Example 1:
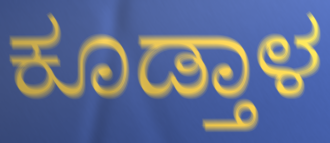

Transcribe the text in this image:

ಕೂಡ್ತಾಳ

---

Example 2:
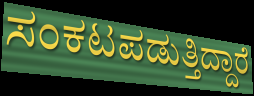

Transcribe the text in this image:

ಸಂಕಟಪಡುತ್ತಿದ್ದಾರೆ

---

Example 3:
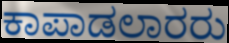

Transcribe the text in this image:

ಕಾಪಾಡಲಾರರು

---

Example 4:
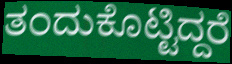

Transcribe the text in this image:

ತಂದುಕೊಟ್ಟಿದ್ದರೆ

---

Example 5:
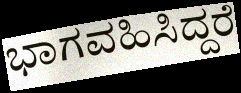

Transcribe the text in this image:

ಭಾಗವಹಿಸಿದ್ದರೆ